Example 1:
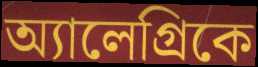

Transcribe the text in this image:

অ্যালেগ্রিকে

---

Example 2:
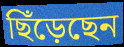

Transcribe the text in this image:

ছিঁড়েছেন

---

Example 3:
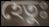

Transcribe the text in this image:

হেতুঃ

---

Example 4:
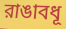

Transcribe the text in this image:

রাঙাবধূ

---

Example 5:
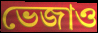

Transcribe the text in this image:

ভেজাও